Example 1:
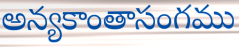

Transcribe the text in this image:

అన్యకాంతాసంగము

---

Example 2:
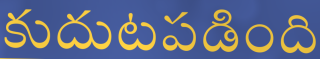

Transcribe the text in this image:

కుదుటపడింది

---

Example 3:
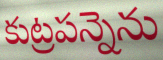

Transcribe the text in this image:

కుట్రపన్నెను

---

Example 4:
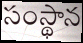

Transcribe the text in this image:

సంస్థాన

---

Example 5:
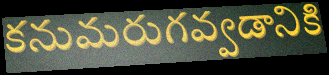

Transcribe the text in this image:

కనుమరుగవ్వడానికి